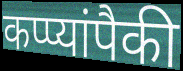
कप्प्यांपैकी